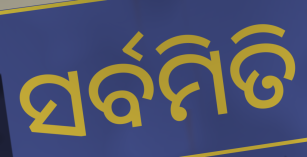
ସର୍ବମିତି